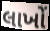
લાખોં